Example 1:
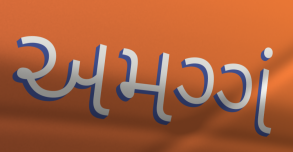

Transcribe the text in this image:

અમગ્ગં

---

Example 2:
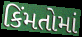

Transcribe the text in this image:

કિંમતોમાં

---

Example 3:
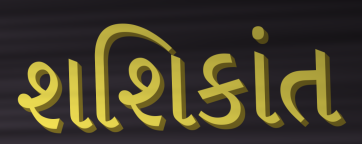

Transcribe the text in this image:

શશિકાંત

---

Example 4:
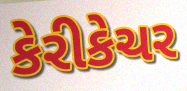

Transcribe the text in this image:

કેરીકેચર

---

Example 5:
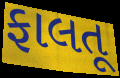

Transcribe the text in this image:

ફાલતૂ